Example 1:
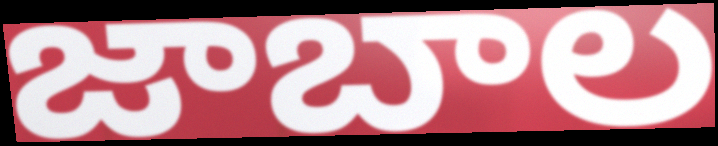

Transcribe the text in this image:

జాబాల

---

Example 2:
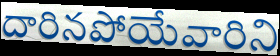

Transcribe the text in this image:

దారినపోయేవారిని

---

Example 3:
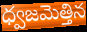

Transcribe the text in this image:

ధ్వజమెత్తిన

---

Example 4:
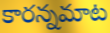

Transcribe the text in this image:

కారన్నమాట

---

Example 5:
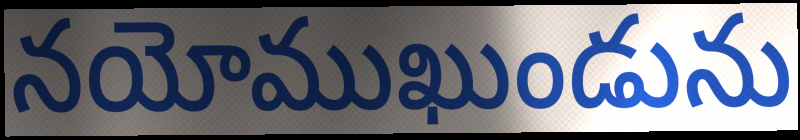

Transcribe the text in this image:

నయోముఖుండును